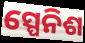
ସ୍ପେନିଶ